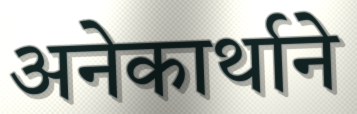
अनेकार्थाने